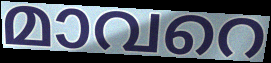
മാവറെ